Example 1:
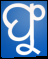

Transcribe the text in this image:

ଫୁ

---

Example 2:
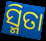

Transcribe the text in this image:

ସ୍ମିତା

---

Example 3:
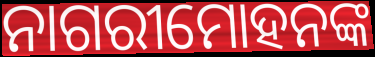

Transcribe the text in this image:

ନାଗରୀମୋହନଙ୍କ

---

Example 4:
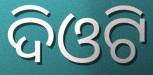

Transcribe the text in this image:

ଦିଓଟି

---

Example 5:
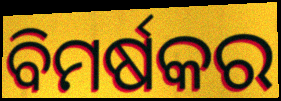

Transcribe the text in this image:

ବିମର୍ଷକର